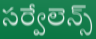
సర్వేలెన్స్